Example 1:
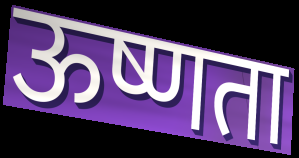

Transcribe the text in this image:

ऊष्णता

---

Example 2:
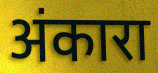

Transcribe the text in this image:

अंकारा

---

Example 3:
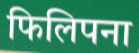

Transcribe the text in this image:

फिलिपना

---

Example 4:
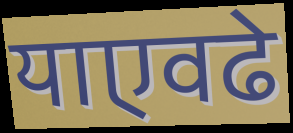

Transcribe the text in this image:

याएवढे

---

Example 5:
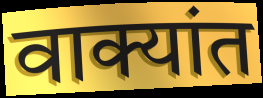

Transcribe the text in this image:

वाक्यांत